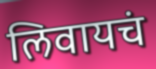
लिवायचं